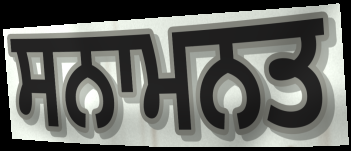
ਸਨਾਮਨਤ